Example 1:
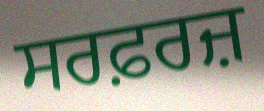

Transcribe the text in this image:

ਸਰਫ਼ਰਜ਼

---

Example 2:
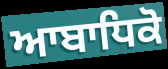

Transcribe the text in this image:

ਆਬਾਧਿਕੋ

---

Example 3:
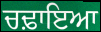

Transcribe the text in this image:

ਚਢ਼ਾਇਆ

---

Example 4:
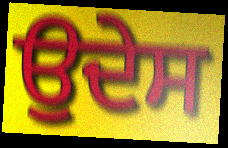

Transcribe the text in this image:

ਉਦੇਸ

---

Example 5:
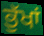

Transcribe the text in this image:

ਭੁੱਖਾਂ